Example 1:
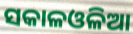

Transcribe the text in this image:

ସକାଳଓଳିଆ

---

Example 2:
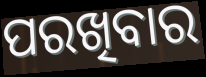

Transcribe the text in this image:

ପରଖିବାର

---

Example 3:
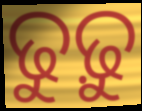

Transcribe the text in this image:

ଢୁଢ଼ୁ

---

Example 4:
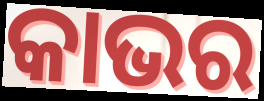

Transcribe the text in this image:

କାଭର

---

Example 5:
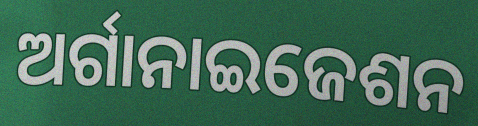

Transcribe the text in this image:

ଅର୍ଗାନାଇଜେଶନ